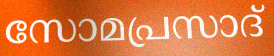
സോമപ്രസാദ്